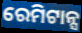
ରେମିଟାନ୍ସ